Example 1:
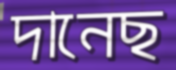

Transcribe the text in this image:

দানেছ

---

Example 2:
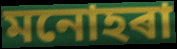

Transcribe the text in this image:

মনোহৰা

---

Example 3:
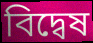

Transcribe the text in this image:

বিদ্বেষ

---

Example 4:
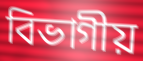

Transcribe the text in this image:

বিভাগীয়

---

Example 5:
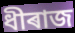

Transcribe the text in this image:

ধীৰাজ